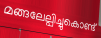
മങ്ങലേല്പിച്ചുകൊണ്ട്